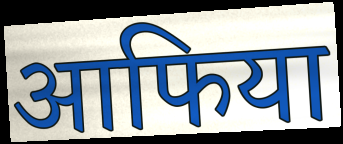
आफिया